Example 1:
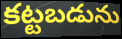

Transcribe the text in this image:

కట్టబడును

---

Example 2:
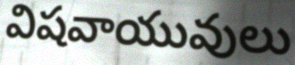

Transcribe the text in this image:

విషవాయువులు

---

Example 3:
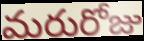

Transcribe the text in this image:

మరురోజు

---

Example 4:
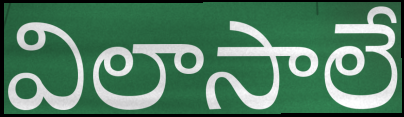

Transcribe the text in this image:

విలాసాలే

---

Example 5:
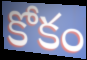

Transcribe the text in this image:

కోకం